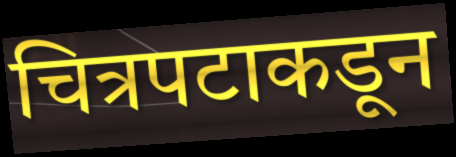
चित्रपटाकडून